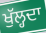
ਖੁੱਲ੍ਹਦਾ